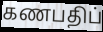
கணபதிப்